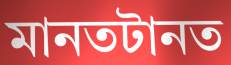
মানতটানত